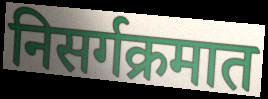
निसर्गक्रमात